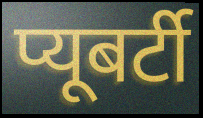
प्‍यूबर्टी